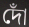
দোঁ